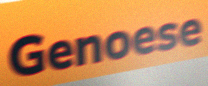
Genoese